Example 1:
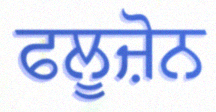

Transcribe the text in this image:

ਫਲੂਜ਼ੋਨ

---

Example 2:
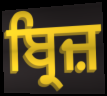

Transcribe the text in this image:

ਬ੍ਰਿਜ਼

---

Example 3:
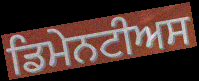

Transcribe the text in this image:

ਡਿਮੇਨਟੀਅਸ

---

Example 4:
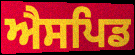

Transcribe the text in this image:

ਐਸਪਿਡ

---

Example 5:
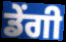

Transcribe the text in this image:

ਡੇਂਗੀ